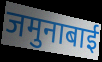
जमुनाबाई